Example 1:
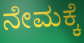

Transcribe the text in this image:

ನೇಮಕ್ಕೆ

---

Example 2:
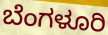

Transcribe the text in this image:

ಬೆಂಗಳೂರಿ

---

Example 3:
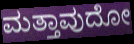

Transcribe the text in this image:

ಮತ್ತಾವುದೋ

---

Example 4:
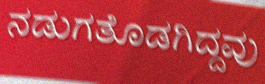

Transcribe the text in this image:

ನಡುಗತೊಡಗಿದ್ದವು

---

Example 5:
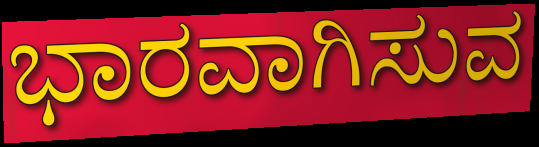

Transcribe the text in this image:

ಭಾರವಾಗಿಸುವ